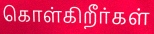
கொள்கிறீர்கள்